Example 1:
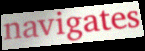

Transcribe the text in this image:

navigates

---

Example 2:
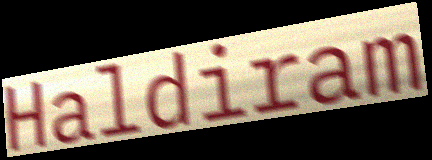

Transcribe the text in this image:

Haldiram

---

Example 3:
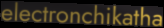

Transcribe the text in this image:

electronchikatha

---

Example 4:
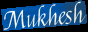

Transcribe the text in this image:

Mukhesh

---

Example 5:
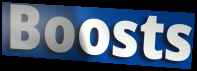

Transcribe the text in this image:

Boosts